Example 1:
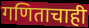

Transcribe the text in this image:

गणिताचाही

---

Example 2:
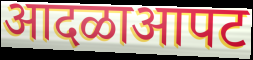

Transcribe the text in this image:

आदळाआपट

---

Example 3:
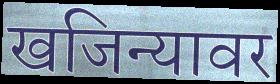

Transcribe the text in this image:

खजिन्यावर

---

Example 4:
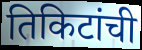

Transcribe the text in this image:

तिकिटांची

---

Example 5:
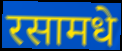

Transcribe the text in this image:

रसामधे